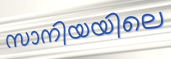
സാനിയയിലെ